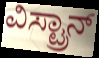
ವಿಸ್ಟ್ರಾನ್